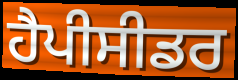
ਹੈਪੀਸੀਡਰ